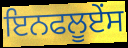
ਇਨਫਲੂਏਂਸ